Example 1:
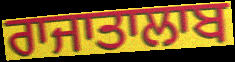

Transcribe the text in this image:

ਰਾਜਾਤਾਲਾਬ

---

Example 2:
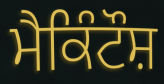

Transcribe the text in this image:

ਮੈਕਿੰਟੌਸ਼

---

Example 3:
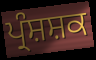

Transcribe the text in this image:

ਪ੍ਰੰਸ਼ਸ਼ਕ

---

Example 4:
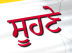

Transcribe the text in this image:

ਸੂਹਣੇ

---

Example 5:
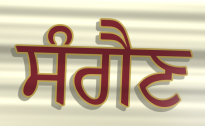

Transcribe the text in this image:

ਸੰਗੈਣ